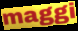
maggi